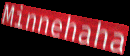
Minnehaha